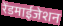
रेंडमाईजेशन